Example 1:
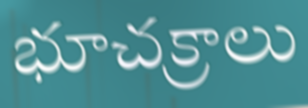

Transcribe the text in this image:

భూచక్రాలు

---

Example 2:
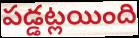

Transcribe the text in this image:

పడ్డట్లయింది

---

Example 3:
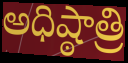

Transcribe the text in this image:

అధిష్ఠాత్రి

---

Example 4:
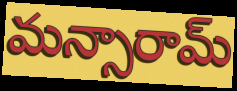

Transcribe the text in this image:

మన్సారామ్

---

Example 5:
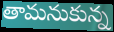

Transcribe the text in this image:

తామనుకున్న